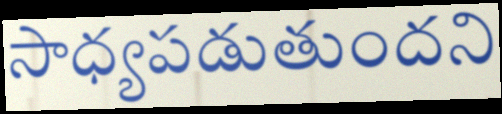
సాధ్యపడుతుందని